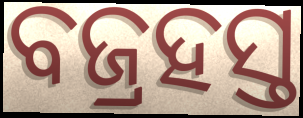
ବଜ୍ରହସ୍ତ